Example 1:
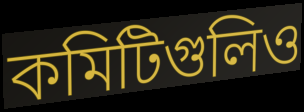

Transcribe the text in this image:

কমিটিগুলিও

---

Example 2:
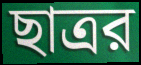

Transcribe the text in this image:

ছাত্রর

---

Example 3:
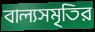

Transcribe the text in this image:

বাল্যসমৃতির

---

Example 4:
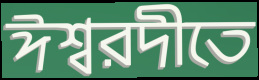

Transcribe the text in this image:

ঈশ্বরদীতে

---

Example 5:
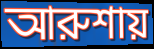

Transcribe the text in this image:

আরুশায়